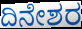
ದಿನೇಶರ